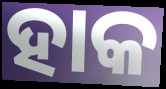
ହାକ